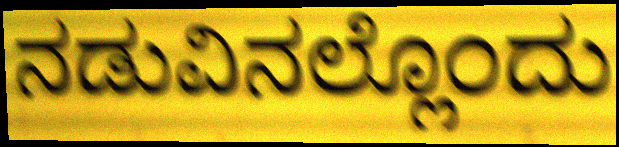
ನಡುವಿನಲ್ಲೊಂದು